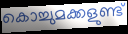
കൊച്ചുമക്കളുണ്ട്